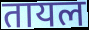
तायल